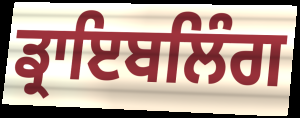
ਡ੍ਰਾਇਬਲਿੰਗ